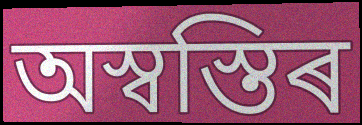
অস্বস্তিৰ